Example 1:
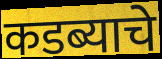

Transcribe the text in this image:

कडब्याचे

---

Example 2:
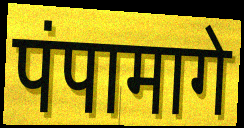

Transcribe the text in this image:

पंपामागे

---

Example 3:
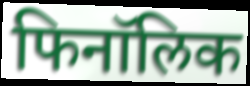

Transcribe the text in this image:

फिनॉलिक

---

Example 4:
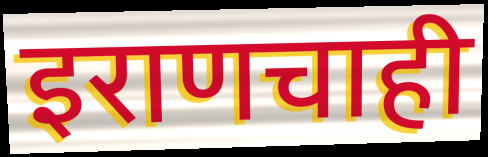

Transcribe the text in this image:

इराणचाही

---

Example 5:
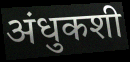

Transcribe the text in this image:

अंधुकशी